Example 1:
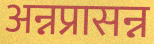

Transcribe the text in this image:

अन्नप्रासन्न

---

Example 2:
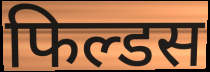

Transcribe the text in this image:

फिल्डस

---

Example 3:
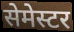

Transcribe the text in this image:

सेमेस्टर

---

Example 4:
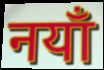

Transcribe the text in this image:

नयाँ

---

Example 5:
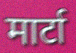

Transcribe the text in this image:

मार्टा